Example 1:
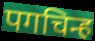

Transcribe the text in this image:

पगचिन्ह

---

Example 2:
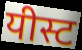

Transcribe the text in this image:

यीस्ट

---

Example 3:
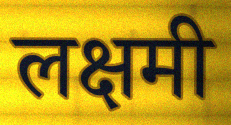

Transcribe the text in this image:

लक्षमी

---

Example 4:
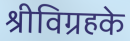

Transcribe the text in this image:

श्रीविग्रहके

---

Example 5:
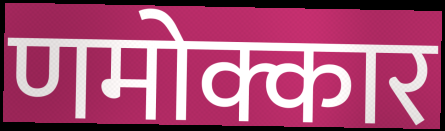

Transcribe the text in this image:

णमोक्कार